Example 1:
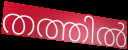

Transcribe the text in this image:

തത്തിൽ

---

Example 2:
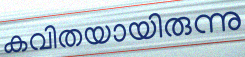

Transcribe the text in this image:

കവിതയായിരുന്നു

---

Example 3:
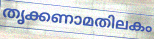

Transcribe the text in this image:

തൃക്കണാമതിലകം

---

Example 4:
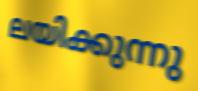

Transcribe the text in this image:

ലയിക്കുന്നു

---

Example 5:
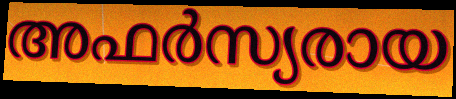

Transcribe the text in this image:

അഫർസ്യരായ